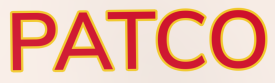
PATCO